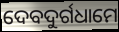
ଦେବଦୁର୍ଗଧାମେ